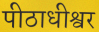
पीठाधीश्वर